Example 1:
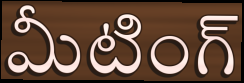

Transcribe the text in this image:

మీటింగ్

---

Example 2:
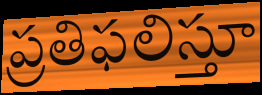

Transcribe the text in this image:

ప్రతిఫలిస్తూ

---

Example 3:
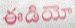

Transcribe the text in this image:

ఈడియో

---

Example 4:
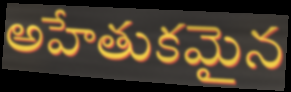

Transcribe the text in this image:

అహేతుకమైన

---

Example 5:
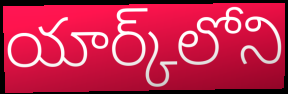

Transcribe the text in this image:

యార్క్‌లోని